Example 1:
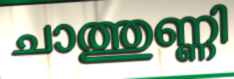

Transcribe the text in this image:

ചാത്തുണ്ണി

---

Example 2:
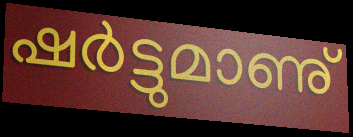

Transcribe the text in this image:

ഷർട്ടുമാണു്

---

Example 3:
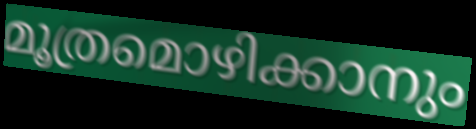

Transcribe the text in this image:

മൂത്രമൊഴിക്കാനും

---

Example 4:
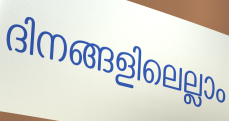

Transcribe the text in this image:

ദിനങ്ങളിലെല്ലാം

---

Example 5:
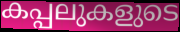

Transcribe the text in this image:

കപ്പലുകളുടെ